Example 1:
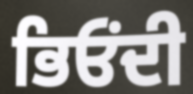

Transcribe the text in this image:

ਭਿਓਂਦੀ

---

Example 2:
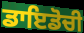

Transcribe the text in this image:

ਡਾਇਡੋਚੀ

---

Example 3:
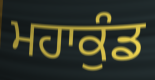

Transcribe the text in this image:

ਮਹਾਕੁੰਡ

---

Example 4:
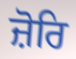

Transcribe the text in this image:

ਜ਼ੋਰਿ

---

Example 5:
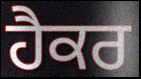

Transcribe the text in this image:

ਹੈਕਰ